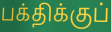
பக்திக்குப்